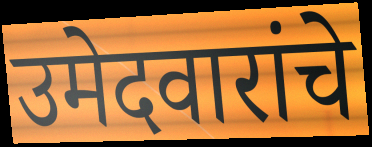
उमेदवारांचे